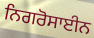
ਨਿਗਰੋਸਾਈਨ